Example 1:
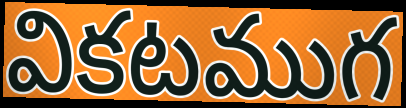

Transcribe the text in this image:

వికటముగ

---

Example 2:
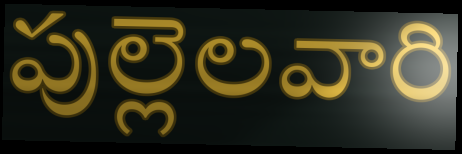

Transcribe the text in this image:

పుల్లెలవారి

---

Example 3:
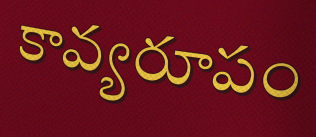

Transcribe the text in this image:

కావ్యరూపం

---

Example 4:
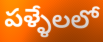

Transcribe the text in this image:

పళ్ళేలలో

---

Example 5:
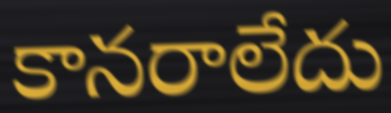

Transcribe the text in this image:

కానరాలేదు